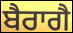
ਬੈਰਾਗੈ